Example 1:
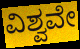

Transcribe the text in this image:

ವಿಶ್ವವೇ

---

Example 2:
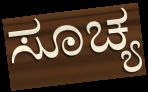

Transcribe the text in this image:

ಸೂಚ್ಯ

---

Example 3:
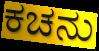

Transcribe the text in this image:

ಕಚನು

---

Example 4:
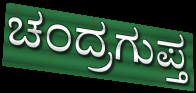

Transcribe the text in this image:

ಚಂದ್ರಗುಪ್ತ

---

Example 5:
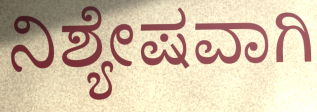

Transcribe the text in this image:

ನಿಶ್ಯೇಷವಾಗಿ